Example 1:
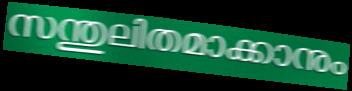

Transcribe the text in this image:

സന്തുലിതമാക്കാനും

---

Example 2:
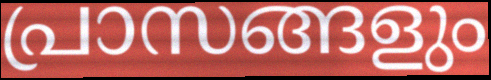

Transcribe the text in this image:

പ്രാസങ്ങളും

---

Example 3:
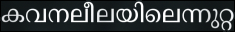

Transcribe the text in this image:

കവനലീലയിലെന്നുറ്റ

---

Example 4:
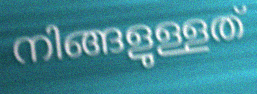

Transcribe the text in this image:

നിങ്ങളുള്ളത്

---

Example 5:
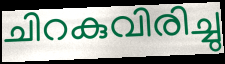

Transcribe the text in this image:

ചിറകുവിരിച്ചു